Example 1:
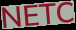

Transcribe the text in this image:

NETC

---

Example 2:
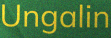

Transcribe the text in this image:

Ungalin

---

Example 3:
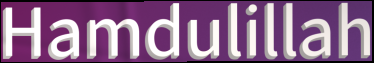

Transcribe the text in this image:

Hamdulillah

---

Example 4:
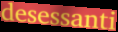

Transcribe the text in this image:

desessanti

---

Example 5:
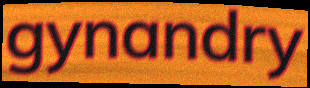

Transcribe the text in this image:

gynandry